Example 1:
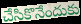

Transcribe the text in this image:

చేసికొనేందుకు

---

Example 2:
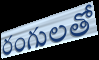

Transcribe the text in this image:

రంగులతో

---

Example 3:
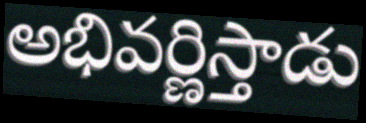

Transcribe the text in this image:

అభివర్ణిస్తాడు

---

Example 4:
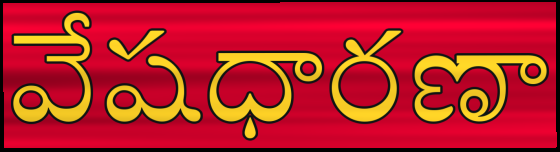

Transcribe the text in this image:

వేషధారణా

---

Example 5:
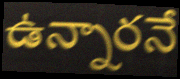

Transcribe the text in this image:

ఉన్నారనే